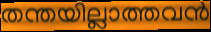
തന്തയില്ലാത്തവൻ